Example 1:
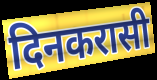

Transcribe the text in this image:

दिनकरासी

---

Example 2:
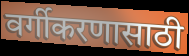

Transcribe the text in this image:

वर्गीकरणासाठी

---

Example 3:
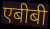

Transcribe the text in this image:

एबीबी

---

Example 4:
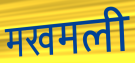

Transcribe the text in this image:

मखमली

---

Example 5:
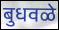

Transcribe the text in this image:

बुधवळे